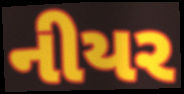
નીયર